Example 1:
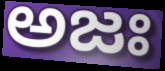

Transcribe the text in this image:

అజః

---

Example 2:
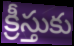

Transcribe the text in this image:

క్రీస్తుకు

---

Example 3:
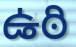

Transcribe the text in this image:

ఉఠి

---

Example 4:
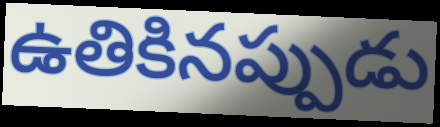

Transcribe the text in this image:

ఉతికినప్పుడు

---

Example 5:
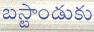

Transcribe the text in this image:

బస్టాండుకు